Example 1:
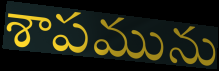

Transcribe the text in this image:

శాపమును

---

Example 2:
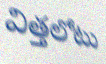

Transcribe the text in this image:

విత్తలోటు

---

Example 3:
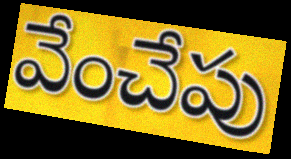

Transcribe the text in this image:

వేంచేపు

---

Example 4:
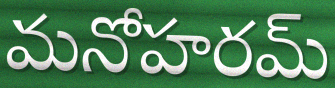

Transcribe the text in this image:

మనోహరమ్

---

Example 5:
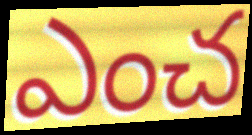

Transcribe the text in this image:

ఎంచ